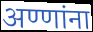
अण्णांना